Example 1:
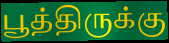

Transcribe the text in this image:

பூத்திருக்கு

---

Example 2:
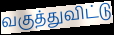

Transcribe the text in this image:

வகுத்துவிட்டு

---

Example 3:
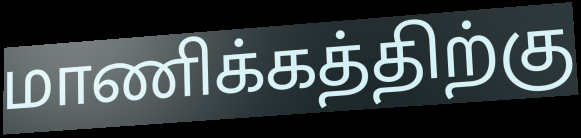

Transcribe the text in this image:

மாணிக்கத்திற்கு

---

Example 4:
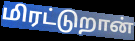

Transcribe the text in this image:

மிரட்டுறான்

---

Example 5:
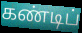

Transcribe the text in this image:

கண்டிப்